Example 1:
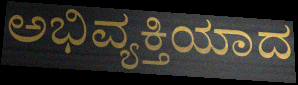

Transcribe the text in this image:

ಅಭಿವ್ಯಕ್ತಿಯಾದ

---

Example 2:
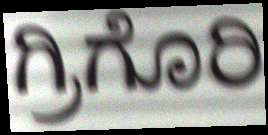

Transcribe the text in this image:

ಗ್ರಿಗೊರಿ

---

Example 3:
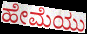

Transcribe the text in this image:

ಹೇಮೆಯು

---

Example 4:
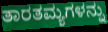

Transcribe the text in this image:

ತಾರತಮ್ಯಗಳನ್ನು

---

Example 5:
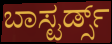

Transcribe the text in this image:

ಬಾಸ್ಟರ್ಡ್ಸ್